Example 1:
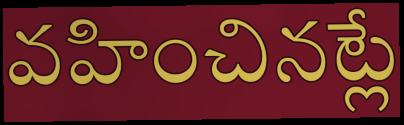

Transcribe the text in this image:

వహించినట్లే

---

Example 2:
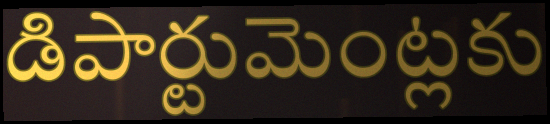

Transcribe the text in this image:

డిపార్టుమెంట్లకు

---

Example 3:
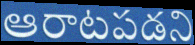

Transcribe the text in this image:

ఆరాటపడని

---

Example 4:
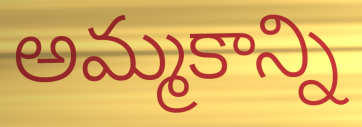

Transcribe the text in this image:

అమ్మకాన్ని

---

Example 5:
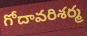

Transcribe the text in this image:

గోదావరిశర్మ